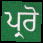
ਪ੍ਰਰੋ